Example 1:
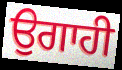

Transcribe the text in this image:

ਉਗਾਹੀ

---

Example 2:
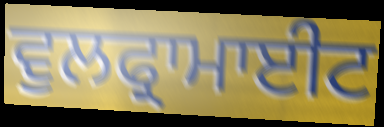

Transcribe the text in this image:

ਵੁਲਫ੍ਰਾਮਾਈਟ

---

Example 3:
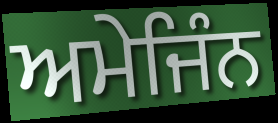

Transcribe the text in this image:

ਅਮੇਜਿੰਨ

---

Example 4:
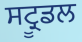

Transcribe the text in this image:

ਸਟ੍ਰੂਡਲ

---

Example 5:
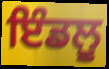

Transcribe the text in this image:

ਇੰਡਲੂ